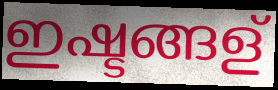
ഇഷ്ടങ്ങള്